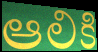
ఆలికి